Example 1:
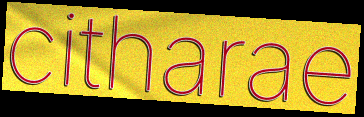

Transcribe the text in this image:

citharae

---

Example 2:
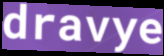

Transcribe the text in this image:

dravye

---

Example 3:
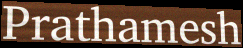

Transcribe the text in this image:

Prathamesh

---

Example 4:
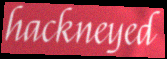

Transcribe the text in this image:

hackneyed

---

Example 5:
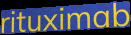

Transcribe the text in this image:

rituximab